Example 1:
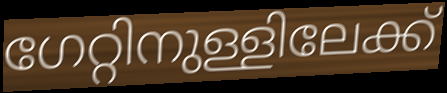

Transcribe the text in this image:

ഗേറ്റിനുള്ളിലേക്ക്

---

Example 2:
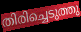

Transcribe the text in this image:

തിരിച്ചെടുത്തു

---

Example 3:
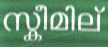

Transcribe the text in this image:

സ്കീമില്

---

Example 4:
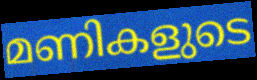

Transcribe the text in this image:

മണികളുടെ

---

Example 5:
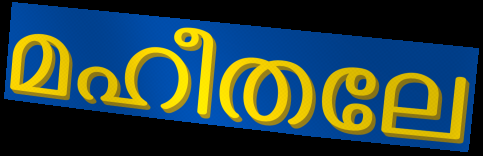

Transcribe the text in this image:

മഹീതലേ